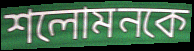
শলোমনকে